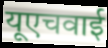
यूएचवाई